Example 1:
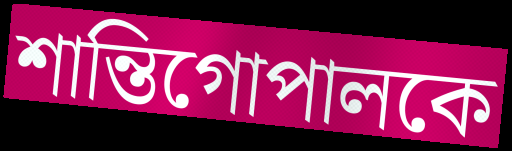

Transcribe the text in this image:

শান্তিগোপালকে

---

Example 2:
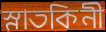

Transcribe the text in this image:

স্নাতকিনী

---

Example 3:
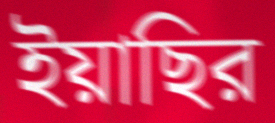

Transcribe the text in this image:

ইয়াছির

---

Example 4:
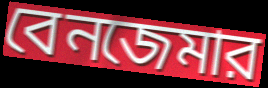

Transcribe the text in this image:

বেনজেমার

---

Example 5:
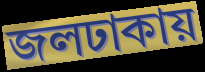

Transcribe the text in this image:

জলঢাকায়